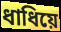
ধাধিয়ে